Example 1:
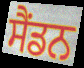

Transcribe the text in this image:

ਸੈਂਡਨ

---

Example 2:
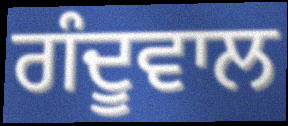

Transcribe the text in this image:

ਗੰਦੂਵਾਲ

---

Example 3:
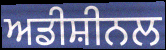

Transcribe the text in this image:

ਅਡੀਸ਼ੀਨਲ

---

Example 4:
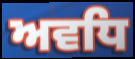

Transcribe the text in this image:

ਅਵਧਿ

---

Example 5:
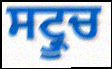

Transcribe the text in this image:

ਸਟ੍ਰੂਚ